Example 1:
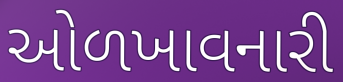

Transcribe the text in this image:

ઓળખાવનારી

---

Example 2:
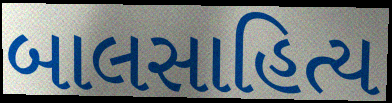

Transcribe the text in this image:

બાલસાહિત્ય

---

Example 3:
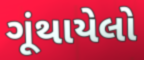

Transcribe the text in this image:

ગૂંથાયેલો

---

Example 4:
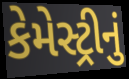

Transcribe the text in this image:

કેમેસ્ટ્રીનું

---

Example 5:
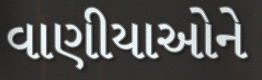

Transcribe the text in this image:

વાણીયાઓને